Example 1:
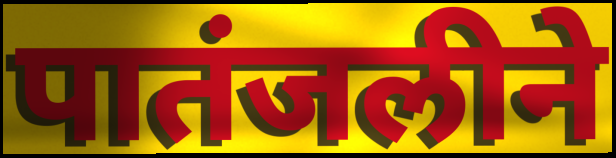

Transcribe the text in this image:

पातंजलीने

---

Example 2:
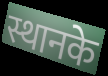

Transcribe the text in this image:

स्थानके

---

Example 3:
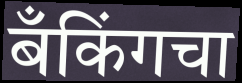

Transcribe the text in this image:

बँकिंगचा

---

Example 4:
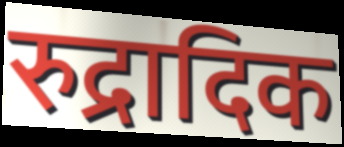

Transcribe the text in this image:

रुद्रादिक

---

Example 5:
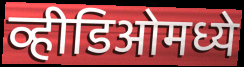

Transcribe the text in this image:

व्हीडिओमध्ये